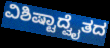
ವಿಶಿಷ್ಟಾದ್ವೈತದ